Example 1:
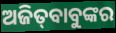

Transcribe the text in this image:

ଅଜିତ୍‍ବାବୁଙ୍କର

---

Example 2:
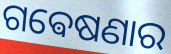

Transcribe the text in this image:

ଗଵେଷଣାର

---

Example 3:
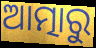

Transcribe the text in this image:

ଆତ୍ମାରୁ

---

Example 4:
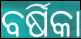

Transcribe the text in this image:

ବର୍ଷିକା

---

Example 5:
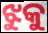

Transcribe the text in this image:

ଝୁକୁ